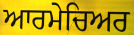
ਆਰਮੇਚਿਅਰ